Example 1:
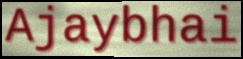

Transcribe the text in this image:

Ajaybhai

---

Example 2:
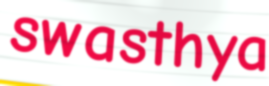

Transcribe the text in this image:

swasthya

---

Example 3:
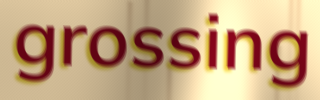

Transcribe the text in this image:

grossing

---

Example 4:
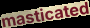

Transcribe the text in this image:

masticated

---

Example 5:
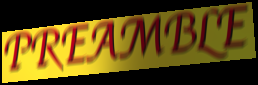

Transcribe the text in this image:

PREAMBLE